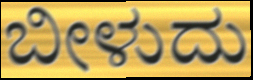
ಬೀಳುದು